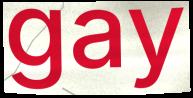
gay